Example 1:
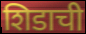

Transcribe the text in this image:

शिडाची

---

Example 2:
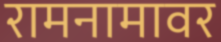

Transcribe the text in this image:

रामनामावर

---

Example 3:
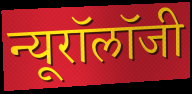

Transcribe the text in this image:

न्यूरॉलॉजी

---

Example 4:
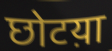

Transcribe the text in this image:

छोटय़ा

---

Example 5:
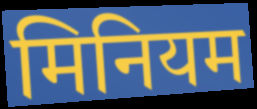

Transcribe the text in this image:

मिनियम